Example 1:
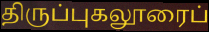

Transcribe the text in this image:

திருப்புகலூரைப்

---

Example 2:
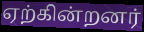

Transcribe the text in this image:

ஏற்கின்றனர்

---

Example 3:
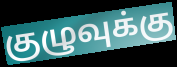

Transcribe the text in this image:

குழுவுக்கு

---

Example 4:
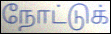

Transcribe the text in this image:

நோட்டுக்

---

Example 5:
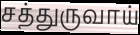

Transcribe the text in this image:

சத்துருவாய்